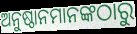
ଅନୁଷ୍ଠାନମାନଙ୍କଠାରୁ